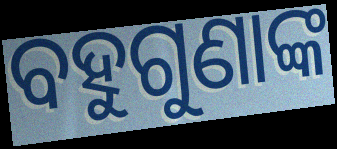
ବହୁଗୁଣାଙ୍କ